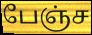
பேஞ்ச